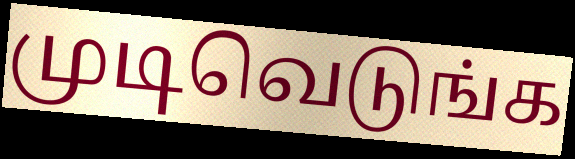
முடிவெடுங்க